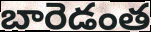
బారెడంత